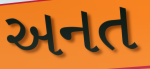
અનત